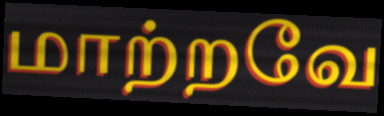
மாற்றவே